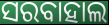
ସରବାହାଲ